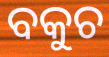
ବକୁଚ